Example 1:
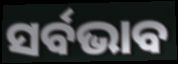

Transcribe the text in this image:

ସର୍ବଭାବ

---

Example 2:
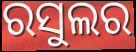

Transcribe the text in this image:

ରସୁଲର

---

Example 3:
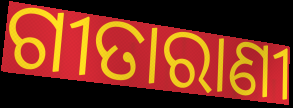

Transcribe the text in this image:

ଗୀତାରାଣୀ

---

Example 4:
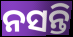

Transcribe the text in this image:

ନସନ୍ତି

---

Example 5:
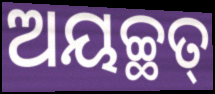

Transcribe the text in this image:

ଅୟଚ୍ଛତ୍